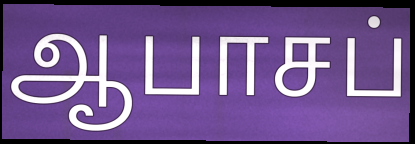
ஆபாசப்